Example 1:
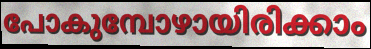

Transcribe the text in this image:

പോകുമ്പോഴായിരിക്കാം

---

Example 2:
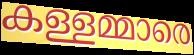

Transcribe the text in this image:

കള്ളമ്മാരെ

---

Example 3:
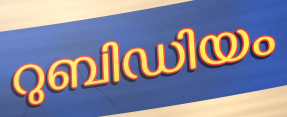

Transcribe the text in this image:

റുബിഡിയം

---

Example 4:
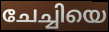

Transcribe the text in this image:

ചേച്ചിയെ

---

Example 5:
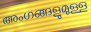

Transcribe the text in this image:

അംഗങ്ങളുമുള്ള